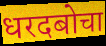
धरदबोचा